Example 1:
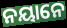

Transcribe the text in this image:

ନୟାନେ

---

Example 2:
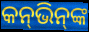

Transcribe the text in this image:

କନ୍‌ଭିନ୍‌ଙ୍କ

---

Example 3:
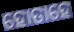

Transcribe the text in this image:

ହୋତାହେ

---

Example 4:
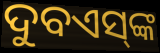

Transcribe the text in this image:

ଦୁବଏସ୍‌ଙ୍କ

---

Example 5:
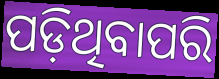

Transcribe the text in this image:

ପଡ଼ିଥିବାପରି